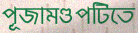
পূজামণ্ডপটিতে